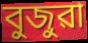
বুজুৱা